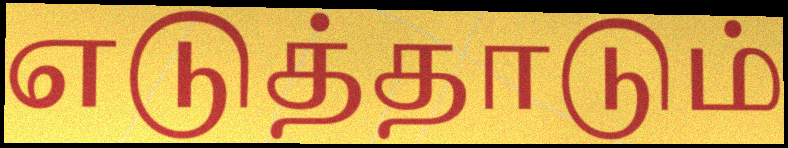
எடுத்தாடும்